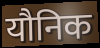
यौनिक